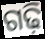
ଗଢ଼ି